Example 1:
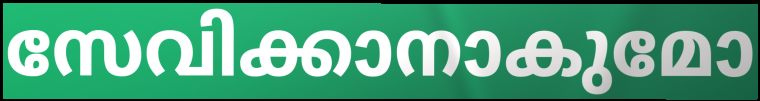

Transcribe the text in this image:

സേവിക്കാനാകുമോ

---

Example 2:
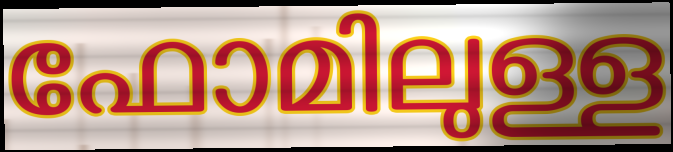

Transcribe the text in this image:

ഫോമിലുള്ള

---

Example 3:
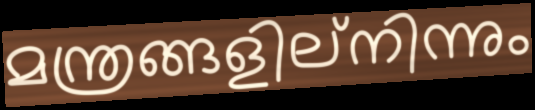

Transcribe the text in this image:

മന്ത്രങ്ങളില്നിന്നും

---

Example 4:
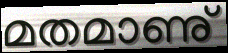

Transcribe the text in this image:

മതമാണു്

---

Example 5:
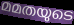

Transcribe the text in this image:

മമതയുടെ